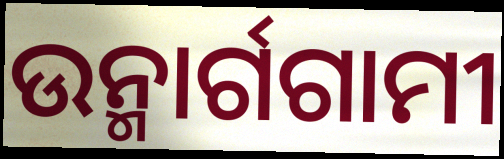
ଉନ୍ମାର୍ଗଗାମୀ